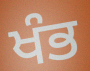
ਖੰਭ